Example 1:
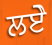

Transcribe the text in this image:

ਲਏੇ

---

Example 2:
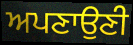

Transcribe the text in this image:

ਅਪਣਾਉਣੀ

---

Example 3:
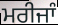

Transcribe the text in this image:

ਮਰੀਜਾੰ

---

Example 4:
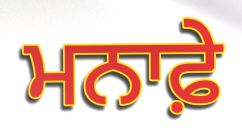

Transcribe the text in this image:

ਮਨਾਫ਼ੇ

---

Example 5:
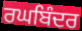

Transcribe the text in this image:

ਰਘਬਿੰਦਰ